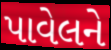
પાવેલને